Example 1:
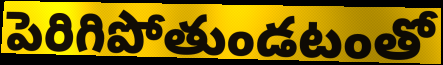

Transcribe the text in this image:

పెరిగిపోతుండటంతో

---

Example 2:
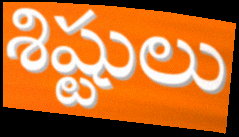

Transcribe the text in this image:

శిష్టులు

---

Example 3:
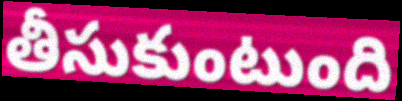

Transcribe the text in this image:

తీసుకుంటుంది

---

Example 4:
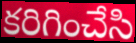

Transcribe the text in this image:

కరిగించేసి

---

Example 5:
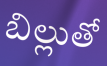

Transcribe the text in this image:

బిల్లుతో